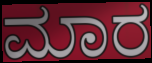
ಮಾರ